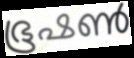
ഭൂഷൺ